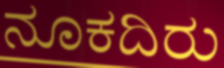
ನೂಕದಿರು